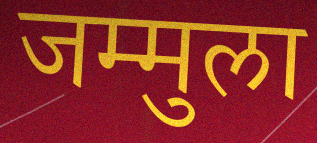
जम्मुला